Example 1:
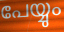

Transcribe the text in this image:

പേയ്യും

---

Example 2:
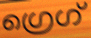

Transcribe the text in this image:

ഗ്രെഗ്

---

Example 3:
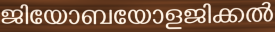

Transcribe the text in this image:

ജിയോബയോളജിക്കൽ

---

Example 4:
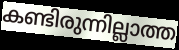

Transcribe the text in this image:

കണ്ടിരുന്നില്ലാത്ത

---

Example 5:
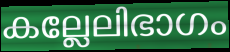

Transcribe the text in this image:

കല്ലേലിഭാഗം